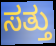
ಸತ್ತು